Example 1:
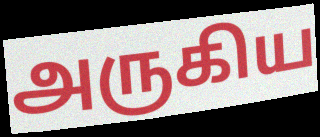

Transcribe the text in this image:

அருகிய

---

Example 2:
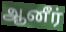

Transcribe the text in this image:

ஆனீர்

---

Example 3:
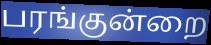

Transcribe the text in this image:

பரங்குன்றை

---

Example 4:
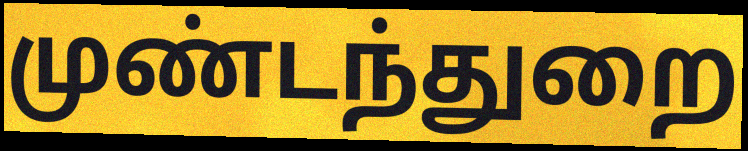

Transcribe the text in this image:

முண்டந்துறை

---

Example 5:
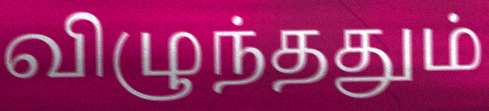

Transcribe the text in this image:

விழுந்ததும்